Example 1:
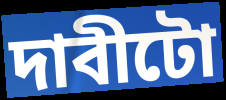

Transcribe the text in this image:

দাবীটো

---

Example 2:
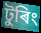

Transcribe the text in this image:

টুৰিং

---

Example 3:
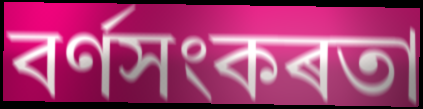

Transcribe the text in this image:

বৰ্ণসংকৰতা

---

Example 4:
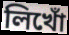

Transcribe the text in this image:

লিখোঁ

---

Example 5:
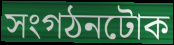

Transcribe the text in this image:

সংগঠনটোক